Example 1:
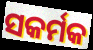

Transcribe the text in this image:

ସକର୍ମକ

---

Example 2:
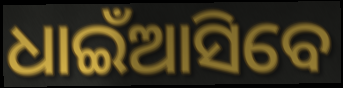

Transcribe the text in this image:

ଧାଇଁଆସିବେ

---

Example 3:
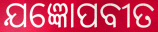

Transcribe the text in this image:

ଯଜ୍ଞୋପବୀତ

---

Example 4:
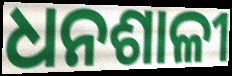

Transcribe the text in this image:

ଧନଶାଳୀ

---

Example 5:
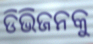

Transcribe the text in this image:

ଡିଭିଜନକୁ